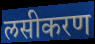
लसीकरण